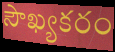
సౌఖ్యకరం